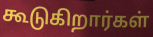
கூடுகிறார்கள்